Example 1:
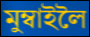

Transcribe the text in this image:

মুম্বাইলৈ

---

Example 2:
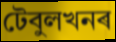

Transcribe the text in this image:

টেবুলখনৰ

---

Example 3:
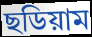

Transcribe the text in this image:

ছডিয়াম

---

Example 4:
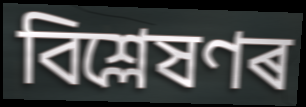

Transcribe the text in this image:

বিশ্লেষণৰ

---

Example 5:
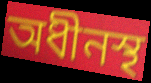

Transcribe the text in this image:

অধীনস্থ